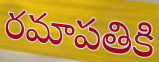
రమాపతికి